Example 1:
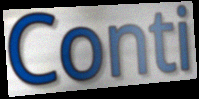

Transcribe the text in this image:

Conti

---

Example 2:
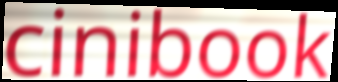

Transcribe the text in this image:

cinibook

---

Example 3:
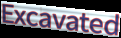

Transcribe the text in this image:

Excavated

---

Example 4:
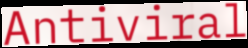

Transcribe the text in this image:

Antiviral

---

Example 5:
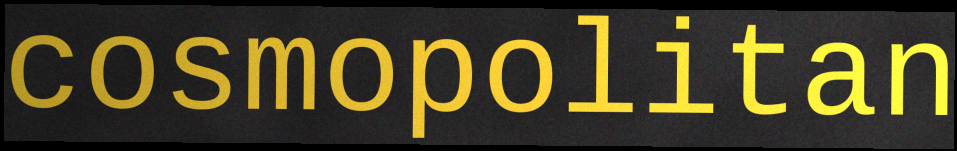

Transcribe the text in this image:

cosmopolitan